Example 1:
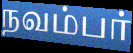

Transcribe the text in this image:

நவம்பர்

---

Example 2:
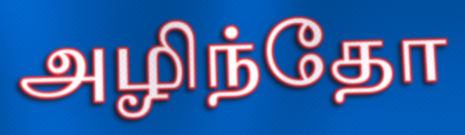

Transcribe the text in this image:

அழிந்தோ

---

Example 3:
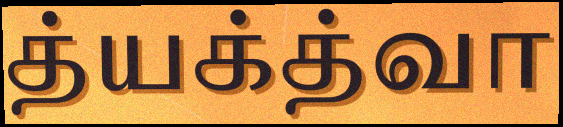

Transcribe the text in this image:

த்யக்த்வா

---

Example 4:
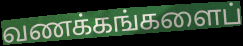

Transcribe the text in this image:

வணக்கங்களைப்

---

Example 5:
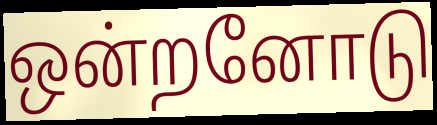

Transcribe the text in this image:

ஒன்றனோடு